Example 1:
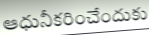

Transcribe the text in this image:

ఆధునీకరించేందుకు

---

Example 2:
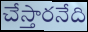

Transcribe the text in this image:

చేస్తారనేది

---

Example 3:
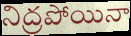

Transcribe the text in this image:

నిద్రపోయినా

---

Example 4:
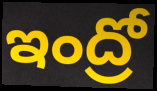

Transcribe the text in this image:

ఇంద్రో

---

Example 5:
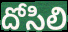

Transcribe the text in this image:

దోసిలి